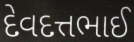
દેવદત્તભાઈ